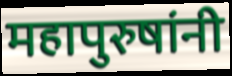
महापुरुषांनी